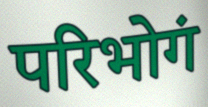
परिभोगं